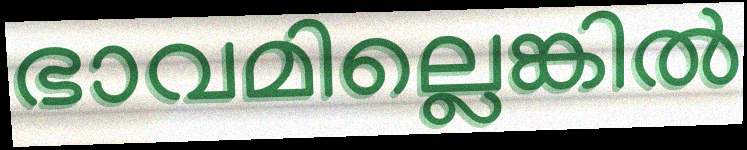
ഭാവമില്ലെങ്കിൽ